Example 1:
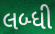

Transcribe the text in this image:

લબ્ધી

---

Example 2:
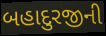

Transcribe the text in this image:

બહાદુરજીની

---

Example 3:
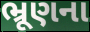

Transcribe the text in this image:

ભ્રૂણના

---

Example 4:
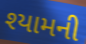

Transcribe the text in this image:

શ્યામની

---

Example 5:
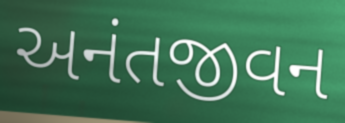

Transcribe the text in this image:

અનંતજીવન